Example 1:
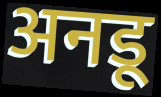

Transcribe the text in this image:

अनडू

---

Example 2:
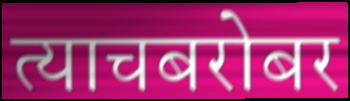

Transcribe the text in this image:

त्‍याचबरोबर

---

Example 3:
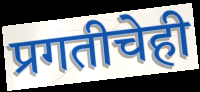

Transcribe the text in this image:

प्रगतीचेही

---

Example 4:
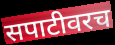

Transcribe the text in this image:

सपाटीवरच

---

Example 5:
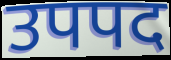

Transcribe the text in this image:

उपपद